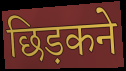
छिड़कने